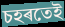
চহৰতেই